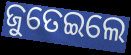
ଜୁତେଇଲେ